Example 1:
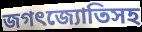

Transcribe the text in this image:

জগৎজ্যোতিসহ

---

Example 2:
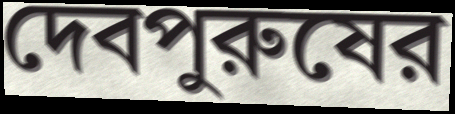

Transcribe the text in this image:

দেবপুরুষের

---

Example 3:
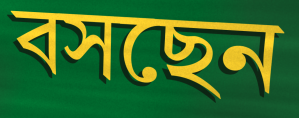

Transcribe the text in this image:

বসছেন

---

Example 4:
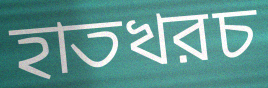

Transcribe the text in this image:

হাতখরচ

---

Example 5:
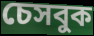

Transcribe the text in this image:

চেসবুক